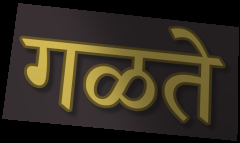
गळते